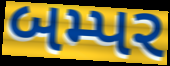
બમ્પર